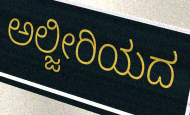
ಅಲ್ಜೀರಿಯದ